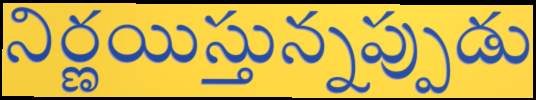
నిర్ణయిస్తున్నప్పుడు